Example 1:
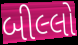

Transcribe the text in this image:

બીલ્લો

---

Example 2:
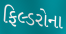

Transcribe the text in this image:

ફિલ્ડરોના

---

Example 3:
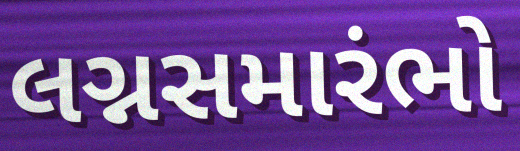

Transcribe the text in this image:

લગ્નસમારંભો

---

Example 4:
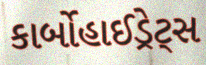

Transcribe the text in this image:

કાર્બોહાઈડ્રેટ્સ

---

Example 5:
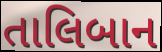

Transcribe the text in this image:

તાલિબાન